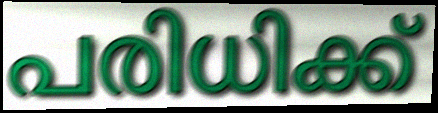
പരിധിക്ക്